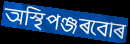
অস্থিপঞ্জৰবোৰ